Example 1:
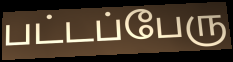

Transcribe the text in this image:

பட்டப்பேரு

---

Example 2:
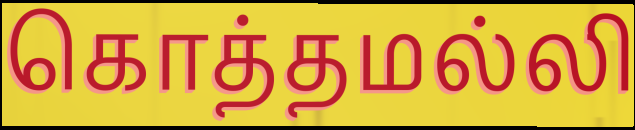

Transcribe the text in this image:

கொத்தமல்லி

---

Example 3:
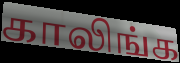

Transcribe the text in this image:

காலிங்க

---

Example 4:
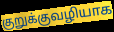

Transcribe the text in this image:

குறுக்குவழியாக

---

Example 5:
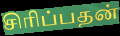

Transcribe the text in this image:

சிரிப்பதன்